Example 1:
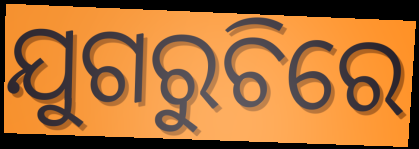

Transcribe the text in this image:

ଯୁଗରୁଚିରେ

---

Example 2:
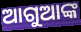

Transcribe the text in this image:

ଆଗୁଆଙ୍କ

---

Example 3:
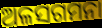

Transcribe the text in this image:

ଅଳସଗମନା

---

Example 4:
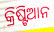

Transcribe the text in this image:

କ୍ରିଷ୍ଟିଆନ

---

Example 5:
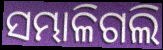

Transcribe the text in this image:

ସମ୍ଭାଳିଗଲି